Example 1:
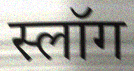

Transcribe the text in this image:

स्लॉग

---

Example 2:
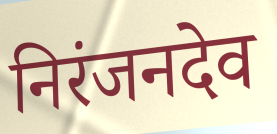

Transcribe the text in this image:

निरंजनदेव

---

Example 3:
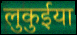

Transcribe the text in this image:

लुकुईया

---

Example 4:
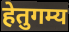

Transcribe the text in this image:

हेतुगम्य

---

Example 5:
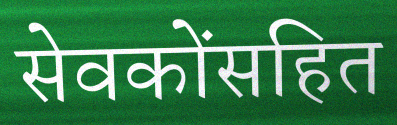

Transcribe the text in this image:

सेवकोंसहित